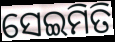
ସେଇମିତି